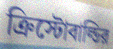
ক্রিস্টোবাল্ডির